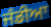
ਜੰਡੀਆ